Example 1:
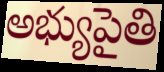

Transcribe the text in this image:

అభ్యుపైతి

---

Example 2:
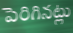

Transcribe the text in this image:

పెరిగినట్లు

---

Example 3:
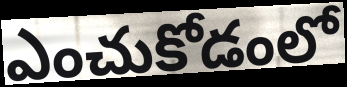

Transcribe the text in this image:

ఎంచుకోడంలో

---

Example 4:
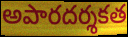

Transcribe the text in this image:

అపారదర్శకత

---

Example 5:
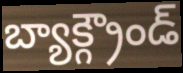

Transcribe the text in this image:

బ్యాక్గ్రౌండ్